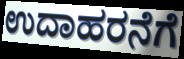
ಉದಾಹರನೆಗೆ